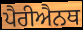
ਪੈਰੀਐਨਥ